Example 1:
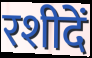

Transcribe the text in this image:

रशीदें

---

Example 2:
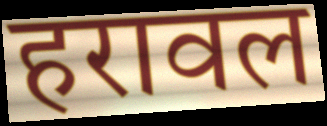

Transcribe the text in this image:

हरावल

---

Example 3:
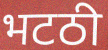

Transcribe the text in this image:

भटठी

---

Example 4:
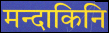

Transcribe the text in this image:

मन्दाकिनि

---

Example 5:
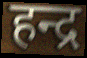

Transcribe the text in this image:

हन्द्र